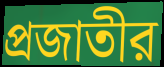
প্রজাতীর